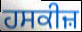
ਹਸਕੀਜ਼